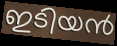
ഇടിയൻ